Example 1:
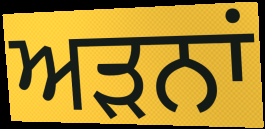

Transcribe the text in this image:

ਅੜਨਾਂ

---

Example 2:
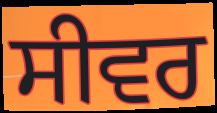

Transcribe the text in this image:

ਸੀਵਰ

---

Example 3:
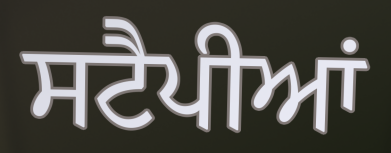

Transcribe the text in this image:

ਸਟੈਪੀਆਂ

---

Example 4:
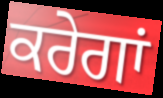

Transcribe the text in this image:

ਕਰੇਗਾਂ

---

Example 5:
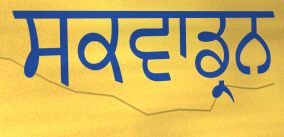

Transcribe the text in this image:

ਸਕਵਾਡ੍ਰਨ